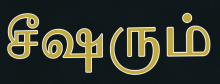
சீஷரும்